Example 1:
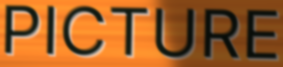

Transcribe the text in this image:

PICTURE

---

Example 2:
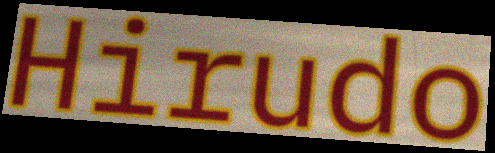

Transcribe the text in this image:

Hirudo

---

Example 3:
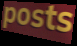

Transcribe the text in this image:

posts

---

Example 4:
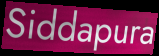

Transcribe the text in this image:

Siddapura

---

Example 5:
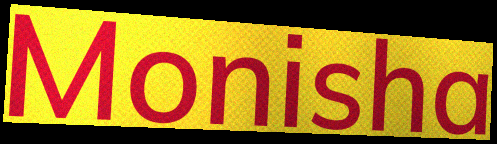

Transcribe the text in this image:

Monisha